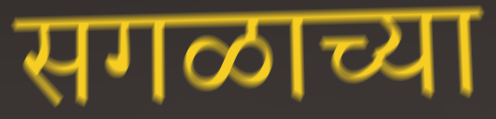
सगळाच्या